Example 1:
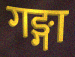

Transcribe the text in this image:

गङ्गा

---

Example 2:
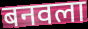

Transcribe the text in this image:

बनवला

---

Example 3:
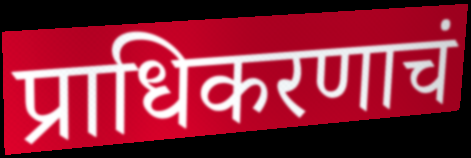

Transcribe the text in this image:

प्राधिकरणाचं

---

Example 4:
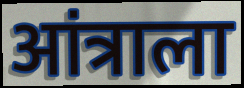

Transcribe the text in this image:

आंत्राला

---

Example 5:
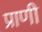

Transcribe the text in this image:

प्राणी